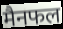
मैनफल